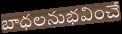
బాధలనుభవించే